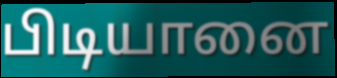
பிடியானை